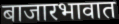
बाजारभावात